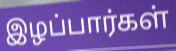
இழப்பார்கள்